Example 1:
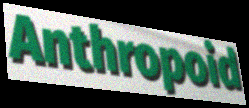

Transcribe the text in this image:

Anthropoid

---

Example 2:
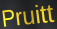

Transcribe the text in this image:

Pruitt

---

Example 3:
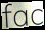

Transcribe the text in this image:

fac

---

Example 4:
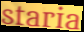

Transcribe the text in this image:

staria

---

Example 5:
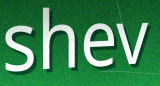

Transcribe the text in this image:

shev